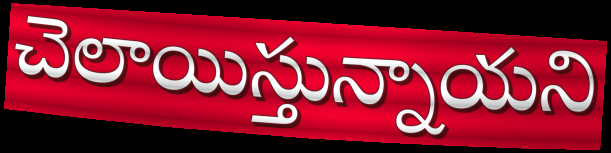
చెలాయిస్తున్నాయని